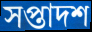
সপ্তাদশ